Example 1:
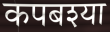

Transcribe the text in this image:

कपबश्या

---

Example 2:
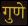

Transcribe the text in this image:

गुणे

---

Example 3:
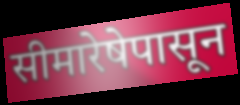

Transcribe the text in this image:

सीमारेषेपासून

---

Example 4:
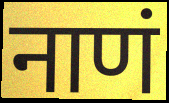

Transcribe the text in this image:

नाणं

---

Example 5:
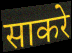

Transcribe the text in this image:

साकरे